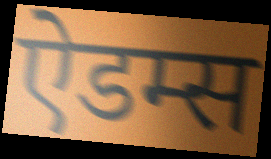
ऐडम्स